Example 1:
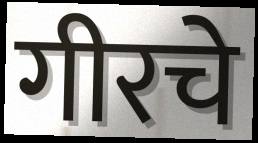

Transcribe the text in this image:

गीरचे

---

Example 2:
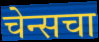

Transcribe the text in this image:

चेन्सचा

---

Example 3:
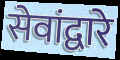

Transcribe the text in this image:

सेवांद्वारे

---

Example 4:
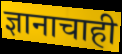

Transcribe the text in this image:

ज्ञानाचाही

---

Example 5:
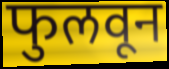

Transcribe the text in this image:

फुलवून